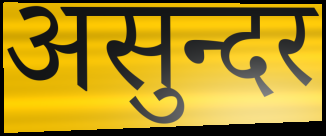
असुन्दर